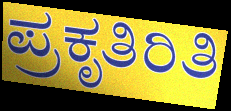
ಪ್ರಕೃತಿರಿತಿ